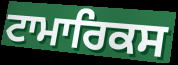
ਟਾਮਾਰਿਕਸ